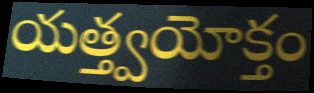
యత్త్వయోక్తం